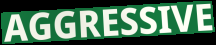
AGGRESSIVE